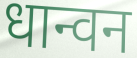
धान्वन